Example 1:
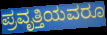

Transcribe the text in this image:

ಪ್ರವೃತ್ತಿಯವರೂ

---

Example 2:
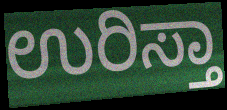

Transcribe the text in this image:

ಉರಿಸ್ತಾ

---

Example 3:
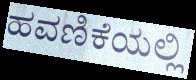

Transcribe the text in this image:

ಹವಣಿಕೆಯಲ್ಲಿ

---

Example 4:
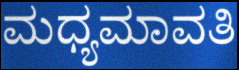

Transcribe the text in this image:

ಮಧ್ಯಮಾವತಿ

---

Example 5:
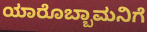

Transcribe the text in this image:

ಯಾರೊಬ್ಬಾಮನಿಗೆ